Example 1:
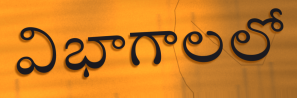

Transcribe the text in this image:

విభాగాలలో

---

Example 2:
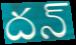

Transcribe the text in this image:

దన్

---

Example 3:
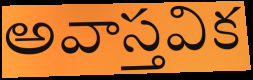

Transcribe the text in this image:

అవాస్తవిక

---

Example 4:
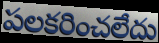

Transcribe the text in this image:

పలకరించలేదు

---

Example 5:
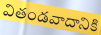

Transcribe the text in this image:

వితండవాదానికి